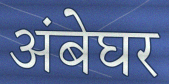
अंबेघर